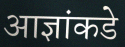
आज्ञांकडे